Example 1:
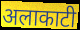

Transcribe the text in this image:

अलाकाटी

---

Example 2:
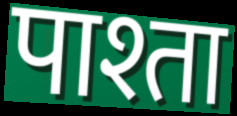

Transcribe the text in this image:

पाश्ता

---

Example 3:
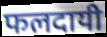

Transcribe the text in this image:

फलदायी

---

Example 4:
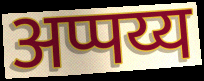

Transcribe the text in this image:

अप्पय्य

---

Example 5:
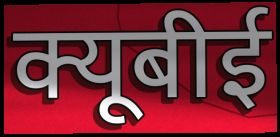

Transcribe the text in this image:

क्यूबीई